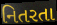
નિતરતા